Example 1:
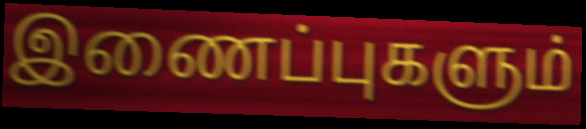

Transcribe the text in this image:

இணைப்புகளும்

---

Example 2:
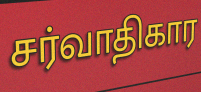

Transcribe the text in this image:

சர்வாதிகார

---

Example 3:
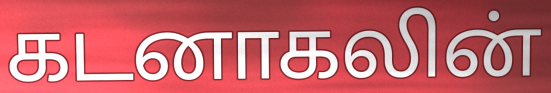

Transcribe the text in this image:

கடனாகலின்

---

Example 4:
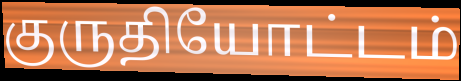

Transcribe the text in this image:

குருதியோட்டம்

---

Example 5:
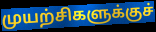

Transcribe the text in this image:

முயற்சிகளுக்குச்